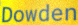
Dowden